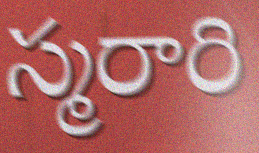
స్మరారి